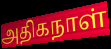
அதிகநாள்